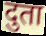
दुता